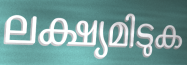
ലക്ഷ്യമിടുക